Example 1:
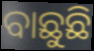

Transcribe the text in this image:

ବାଛୁଛି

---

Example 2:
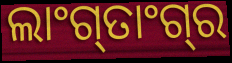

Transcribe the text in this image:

ଲାଂଗ୍‍ତାଂଗ୍‍ର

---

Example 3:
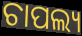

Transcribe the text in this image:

ଚାପଲ୍ୟ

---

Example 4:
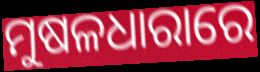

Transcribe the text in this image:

ମୁଷଳଧାରାରେ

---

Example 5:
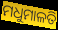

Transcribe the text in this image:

ମଧୁମାଳତି